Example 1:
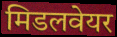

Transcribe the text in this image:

मिडलवेयर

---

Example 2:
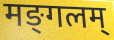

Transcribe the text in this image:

मङ्गलम्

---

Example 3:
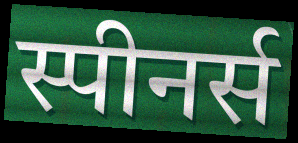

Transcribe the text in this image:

स्पीनर्स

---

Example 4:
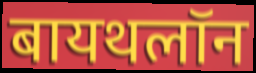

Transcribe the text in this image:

बायथलॉन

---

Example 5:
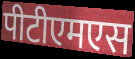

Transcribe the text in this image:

पीटीएमएस